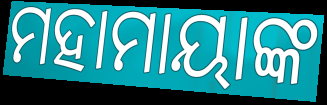
ମହାମାୟାଙ୍କ